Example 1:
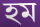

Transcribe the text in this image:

হম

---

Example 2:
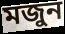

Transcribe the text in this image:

মজুন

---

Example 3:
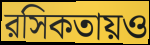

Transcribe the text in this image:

রসিকতায়ও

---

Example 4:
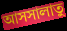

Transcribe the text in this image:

আসসালাতু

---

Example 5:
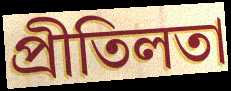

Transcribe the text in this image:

প্রীতিলতা